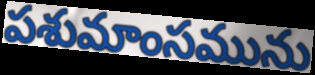
పశుమాంసమును